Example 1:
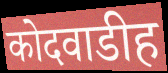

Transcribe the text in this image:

कोदवाडीह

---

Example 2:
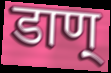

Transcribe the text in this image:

डाण्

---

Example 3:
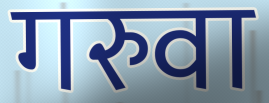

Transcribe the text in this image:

गरुवा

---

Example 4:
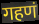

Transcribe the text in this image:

गहणं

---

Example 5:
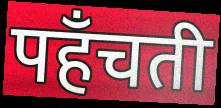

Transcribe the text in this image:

पहँचती